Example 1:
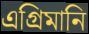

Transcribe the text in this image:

এগ্রিমানি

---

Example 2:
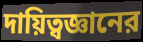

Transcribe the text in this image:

দায়িত্বজ্ঞানের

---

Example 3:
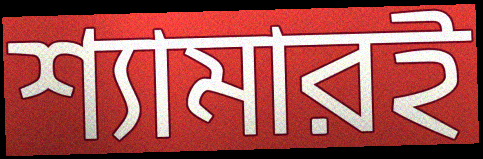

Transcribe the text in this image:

শ্যামারই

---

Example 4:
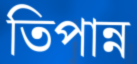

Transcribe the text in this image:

তিপান্ন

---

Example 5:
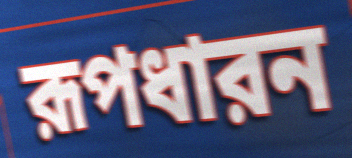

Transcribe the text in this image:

রূপধারন